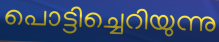
പൊട്ടിച്ചെറിയുന്നു